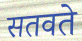
सतवते